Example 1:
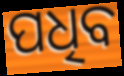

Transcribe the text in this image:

ପଧିବ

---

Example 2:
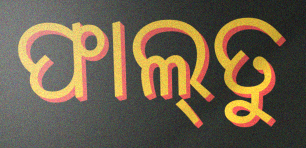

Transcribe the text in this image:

ଫାଲ୍‌ତୁ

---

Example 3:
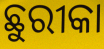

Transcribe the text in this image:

ଛୁରୀକା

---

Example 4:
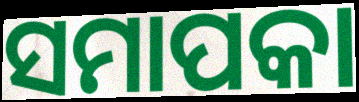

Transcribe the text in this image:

ସମାପକା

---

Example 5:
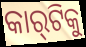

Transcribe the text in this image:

କାର୍‌ଟିକୁ